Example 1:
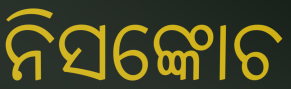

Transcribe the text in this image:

ନିସଙ୍କୋଚ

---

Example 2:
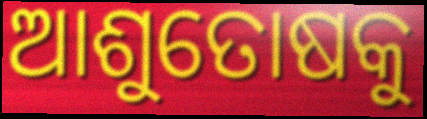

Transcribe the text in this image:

ଆଶୁତୋଷକୁ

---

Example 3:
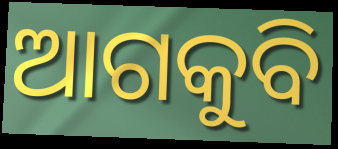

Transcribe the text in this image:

ଆଗକୁବି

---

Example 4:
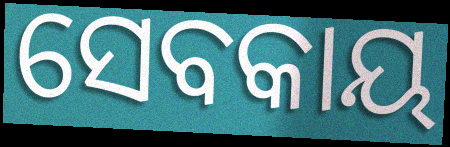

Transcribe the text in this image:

ସେବକାୟ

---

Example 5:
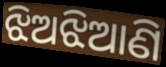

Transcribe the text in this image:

ଝିଅଝିଆଣି